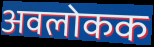
अवलोकक